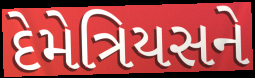
દેમેત્રિયસને